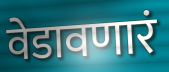
वेडावणारं